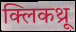
क्लिकथ्रू